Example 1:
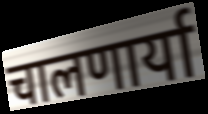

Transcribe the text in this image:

चालणार्या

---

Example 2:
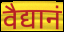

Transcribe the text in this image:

वैद्यानं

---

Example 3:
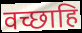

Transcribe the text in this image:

वच्छाहि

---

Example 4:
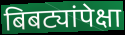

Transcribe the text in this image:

बिबट्यांपेक्षा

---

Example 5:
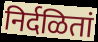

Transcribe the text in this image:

निर्दळितां